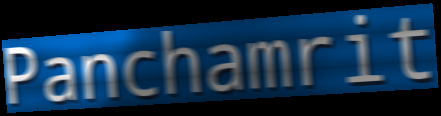
Panchamrit